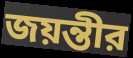
জয়ন্তীর